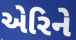
એરિને